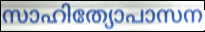
സാഹിത്യോപാസന